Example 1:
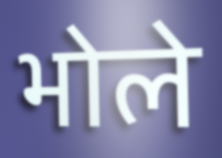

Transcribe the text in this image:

भोले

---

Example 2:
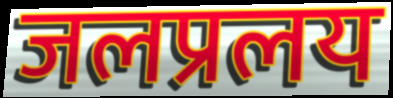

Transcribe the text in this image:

जलप्रलय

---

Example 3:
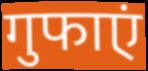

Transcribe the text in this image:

गुफाएं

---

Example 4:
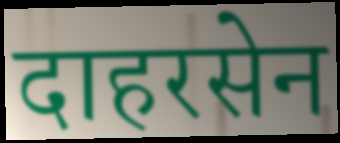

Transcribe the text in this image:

दाहरसेन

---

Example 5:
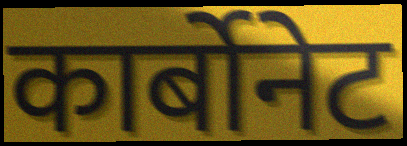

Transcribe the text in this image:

कार्बोनेट